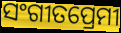
ସଂଗୀତପ୍ରେମୀ